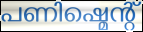
പണിഷ്മെന്റ്